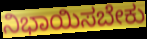
ನಿಭಾಯಿಸಬೇಕು